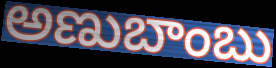
అణుబాంబు